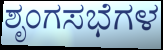
ಶೃಂಗಸಭೆಗಳ